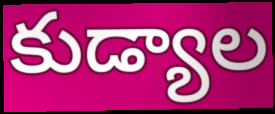
కుడ్యాల